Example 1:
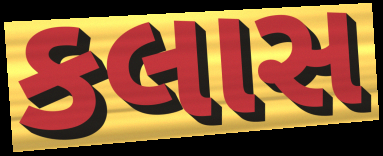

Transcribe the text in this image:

કલાસ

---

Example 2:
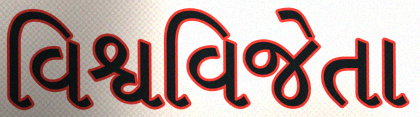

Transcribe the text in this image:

વિશ્વવિજેતા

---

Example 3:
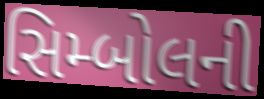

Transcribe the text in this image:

સિમ્બોલની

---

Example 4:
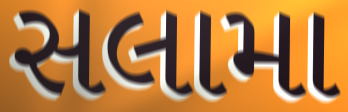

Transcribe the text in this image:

સલામા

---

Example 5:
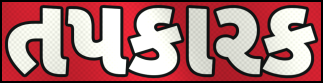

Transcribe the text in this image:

તપકારક